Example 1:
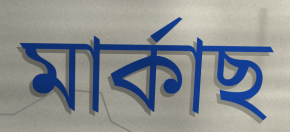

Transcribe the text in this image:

মাৰ্কাছ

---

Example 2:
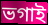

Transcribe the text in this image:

ভগাই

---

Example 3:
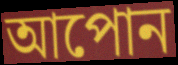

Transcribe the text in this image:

আপোন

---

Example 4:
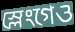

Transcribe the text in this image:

স্লেংগেও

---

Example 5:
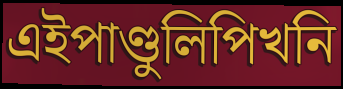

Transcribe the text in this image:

এইপাণ্ডুলিপিখনি